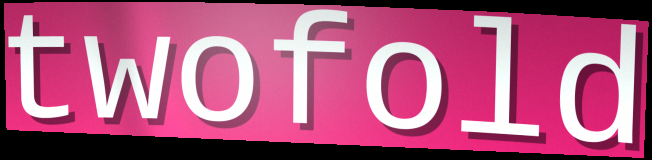
twofold